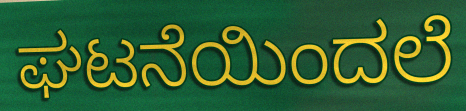
ಘಟನೆಯಿಂದಲೆ